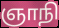
ஞாநி